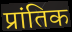
प्रांतिक